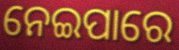
ନେଇପାରେ